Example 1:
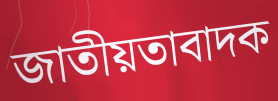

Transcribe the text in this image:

জাতীয়তাবাদক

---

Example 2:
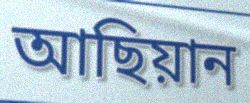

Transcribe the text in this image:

আছিয়ান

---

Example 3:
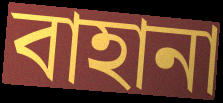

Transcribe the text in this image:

বাহানা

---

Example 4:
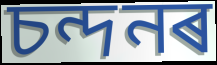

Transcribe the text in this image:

চন্দনৰ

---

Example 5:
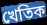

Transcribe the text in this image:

খেতিক